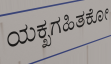
ಯಕ್ಖಗಹಿತಕೋ